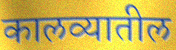
कालव्यातील